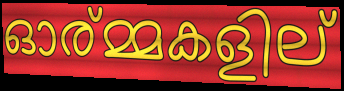
ഓര്മ്മകളില്